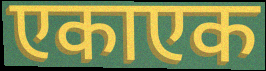
एकाएक